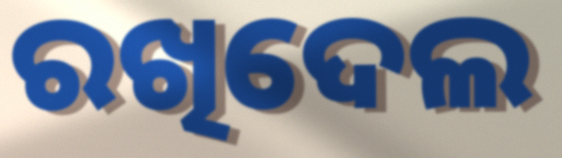
ରଖିଦେଲ